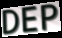
DEP